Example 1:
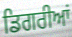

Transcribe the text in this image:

ਡਿਗਰੀਆਂ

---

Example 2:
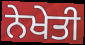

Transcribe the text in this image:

ਨੇਖੇਤੀ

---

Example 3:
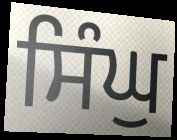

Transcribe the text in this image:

ਸਿੰਘੁ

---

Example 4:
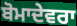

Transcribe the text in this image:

ਬੋਮਾਦੇਵਰਾ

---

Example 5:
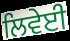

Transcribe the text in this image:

ਲਿਵੇਈ